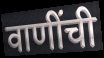
वाणींची